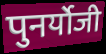
पुनर्योजी